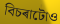
বিচৰাটোও